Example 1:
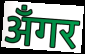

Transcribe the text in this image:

अँगर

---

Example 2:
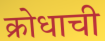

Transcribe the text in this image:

क्रोधाची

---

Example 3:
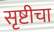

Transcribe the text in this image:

सृष्टीचा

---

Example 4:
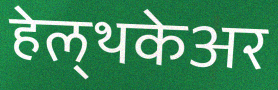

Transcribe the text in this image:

हेल्थकेअर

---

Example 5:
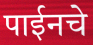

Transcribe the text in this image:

पाईनचे